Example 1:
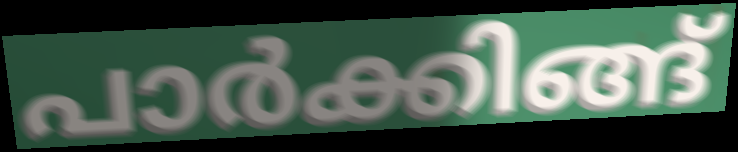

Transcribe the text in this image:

പാർക്കിങ്ങ്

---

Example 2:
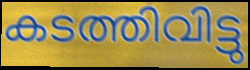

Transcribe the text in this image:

കടത്തിവിട്ടു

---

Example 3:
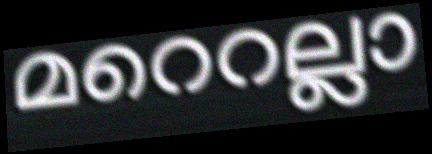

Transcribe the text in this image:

മറെറല്ലാ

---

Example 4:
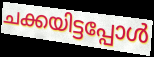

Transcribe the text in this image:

ചക്കയിട്ടപ്പോൾ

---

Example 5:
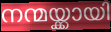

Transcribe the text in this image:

നന്മയ്ക്കായി